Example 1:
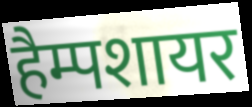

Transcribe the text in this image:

हैम्पशायर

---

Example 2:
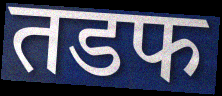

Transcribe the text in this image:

तडफ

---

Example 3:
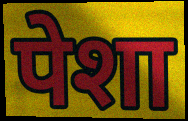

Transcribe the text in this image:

पेशा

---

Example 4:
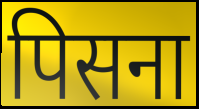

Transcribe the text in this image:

पिसना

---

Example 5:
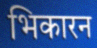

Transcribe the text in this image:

भिकारन